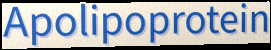
Apolipoprotein